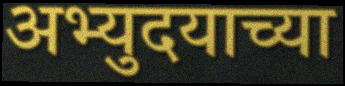
अभ्युदयाच्या